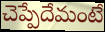
చెప్పేదేమంటే